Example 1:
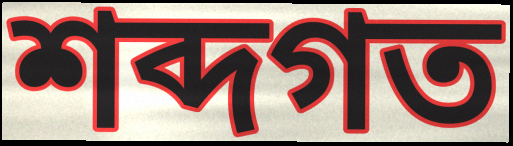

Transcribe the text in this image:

শব্দগত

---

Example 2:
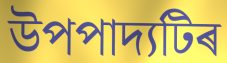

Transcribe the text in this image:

উপপাদ্যটিৰ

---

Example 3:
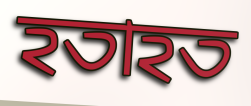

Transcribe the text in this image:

হতাহত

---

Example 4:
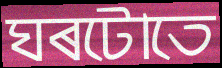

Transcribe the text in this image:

ঘৰটোতে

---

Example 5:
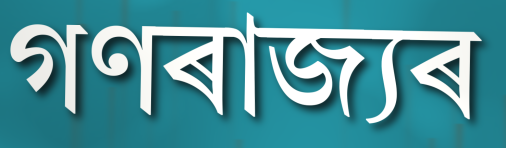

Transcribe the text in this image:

গণৰাজ্যৰ